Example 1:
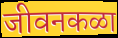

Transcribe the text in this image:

जीवनकळा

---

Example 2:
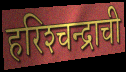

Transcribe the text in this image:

हरिश्चन्द्राची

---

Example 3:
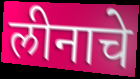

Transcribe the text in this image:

लीनाचे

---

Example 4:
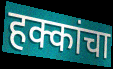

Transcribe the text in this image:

हक्कांचा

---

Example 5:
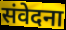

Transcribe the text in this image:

संवेदना